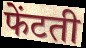
फेंटती